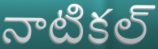
నాటికల్